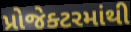
પ્રોજેક્ટરમાંથી